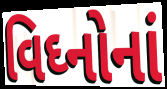
વિઘ્નોનાં